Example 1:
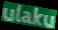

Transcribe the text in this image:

ulaku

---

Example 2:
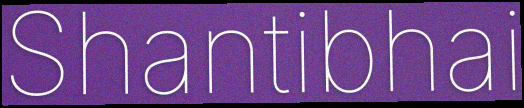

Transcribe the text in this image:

Shantibhai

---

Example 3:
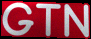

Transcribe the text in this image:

GTN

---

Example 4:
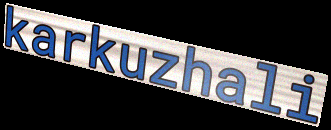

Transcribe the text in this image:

karkuzhali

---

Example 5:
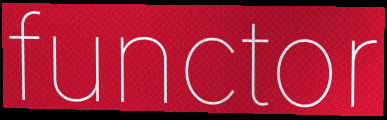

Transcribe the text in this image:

functor